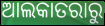
ଆଲକାତରାରୁ